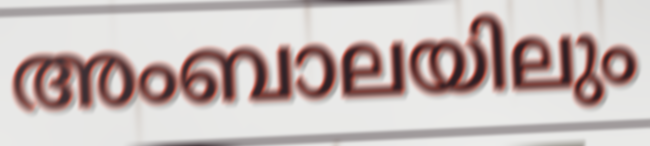
അംബാലയിലും